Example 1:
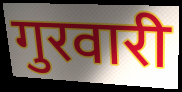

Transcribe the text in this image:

गुरवारी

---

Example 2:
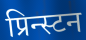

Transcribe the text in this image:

प्रिन्स्टन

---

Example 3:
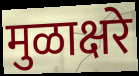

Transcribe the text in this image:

मुळाक्षरे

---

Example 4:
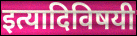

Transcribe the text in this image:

इत्यादिविषयी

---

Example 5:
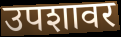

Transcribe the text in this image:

उपशावर